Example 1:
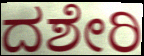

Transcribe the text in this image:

ದಶೇರಿ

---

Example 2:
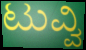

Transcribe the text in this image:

ಟುವ್ವಿ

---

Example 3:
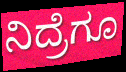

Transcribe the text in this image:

ನಿದ್ರೆಗೂ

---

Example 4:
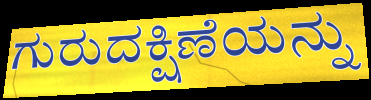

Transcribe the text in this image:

ಗುರುದಕ್ಷಿಣೆಯನ್ನು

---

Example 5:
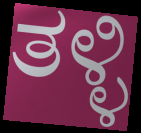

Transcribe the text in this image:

ತಳ್ಳಿ